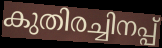
കുതിരച്ചിനപ്പ്